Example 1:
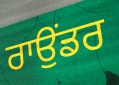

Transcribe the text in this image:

ਰਾਉਂਡਰ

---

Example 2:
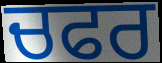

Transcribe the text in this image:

ਚਫਰ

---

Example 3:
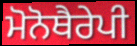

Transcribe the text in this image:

ਮੋਨੋਥੈਰੇਪੀ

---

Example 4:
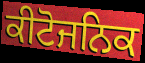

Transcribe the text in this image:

ਕੀਟੋਜਨਿਕ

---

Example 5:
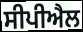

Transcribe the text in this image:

ਸੀਪੀਐਲ